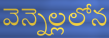
వెన్నెల్లలోన